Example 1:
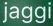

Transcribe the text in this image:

jaggi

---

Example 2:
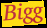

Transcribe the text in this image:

Bigg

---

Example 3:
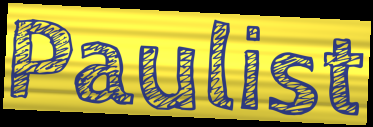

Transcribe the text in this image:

Paulist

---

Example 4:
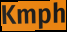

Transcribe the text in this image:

Kmph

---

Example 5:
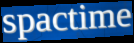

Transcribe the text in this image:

spactime